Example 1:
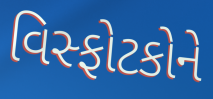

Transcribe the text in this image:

વિસ્ફોટકોને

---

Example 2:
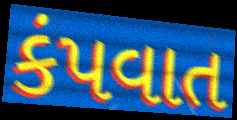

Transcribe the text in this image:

કંપવાત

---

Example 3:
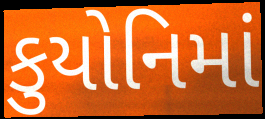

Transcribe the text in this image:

કુયોનિમાં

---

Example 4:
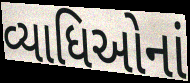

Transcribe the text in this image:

વ્યાધિઓનાં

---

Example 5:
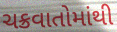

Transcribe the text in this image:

ચક્રવાતોમાંથી